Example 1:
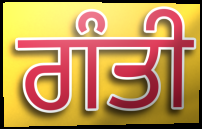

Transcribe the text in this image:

ਗੰਤੀ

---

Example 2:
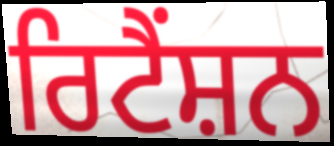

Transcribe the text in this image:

ਰਿਟੈਂਸ਼ਨ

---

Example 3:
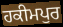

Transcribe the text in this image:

ਹਕੀਮਪੁਰ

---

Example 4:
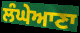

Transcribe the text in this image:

ਲੰਘੇਆਣਾ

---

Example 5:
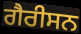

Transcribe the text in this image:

ਗੈਰੀਸਨ